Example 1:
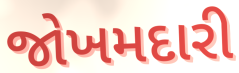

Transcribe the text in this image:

જોખમદારી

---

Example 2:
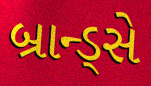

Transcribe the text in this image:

બ્રાન્ડ્સે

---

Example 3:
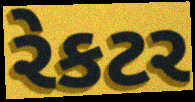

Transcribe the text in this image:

રેકટર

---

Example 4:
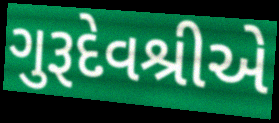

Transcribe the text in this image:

ગુરૂદેવશ્રીએ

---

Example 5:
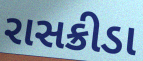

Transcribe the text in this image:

રાસક્રીડા